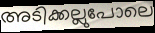
അടിക്കല്ലുപോലെ